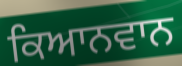
ਕਿਆਨਵਾਨ